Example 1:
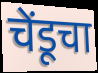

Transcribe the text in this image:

चेंडूचा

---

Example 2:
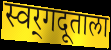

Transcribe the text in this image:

स्वर्गदूताला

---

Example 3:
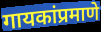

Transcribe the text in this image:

गायकांप्रमाणे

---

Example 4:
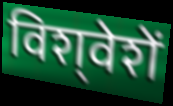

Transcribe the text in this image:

विश्वेशें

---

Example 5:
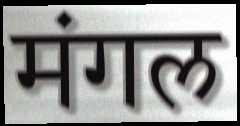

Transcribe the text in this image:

मंगल